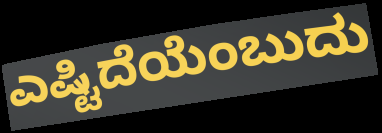
ಎಷ್ಟಿದೆಯೆಂಬುದು